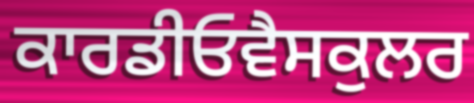
ਕਾਰਡੀਓਵੈਸਕੁਲਰ